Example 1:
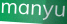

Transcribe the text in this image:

manyu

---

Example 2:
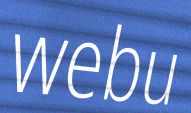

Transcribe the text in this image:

webu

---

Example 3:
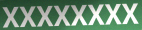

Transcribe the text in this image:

XXXXXXXX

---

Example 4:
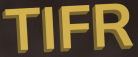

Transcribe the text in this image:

TIFR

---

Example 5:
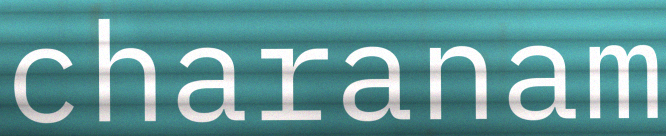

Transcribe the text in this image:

charanam